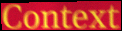
Context